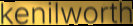
kenilworth